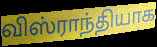
விஸ்ராந்தியாக